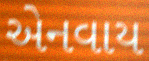
એનવાય